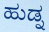
ಹುಡ್ನ